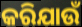
କରିଯାଉଁ